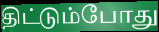
திட்டும்போது